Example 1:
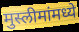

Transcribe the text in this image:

मुस्लीमांमध्ये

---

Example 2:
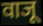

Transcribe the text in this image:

वाजू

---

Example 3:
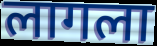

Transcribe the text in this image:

लागला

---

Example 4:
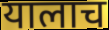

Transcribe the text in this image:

यालाच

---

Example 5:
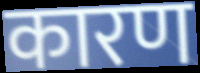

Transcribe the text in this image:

कारण